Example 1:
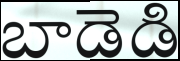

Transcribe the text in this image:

బాడెడి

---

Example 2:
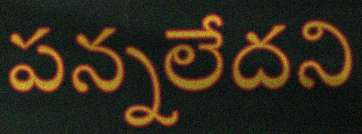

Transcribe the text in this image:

పన్నలేదని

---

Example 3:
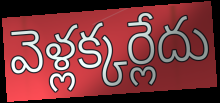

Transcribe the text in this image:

వెళ్లక్కర్లేదు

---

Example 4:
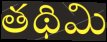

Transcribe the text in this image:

తథిమి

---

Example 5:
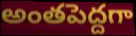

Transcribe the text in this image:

అంతపెద్దగా